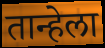
तान्हेला